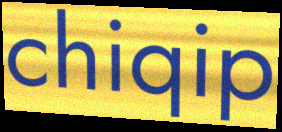
chiqip